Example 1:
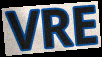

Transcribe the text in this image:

VRE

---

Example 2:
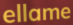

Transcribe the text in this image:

ellame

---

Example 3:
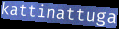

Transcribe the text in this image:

kattinattuga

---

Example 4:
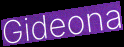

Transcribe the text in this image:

Gideona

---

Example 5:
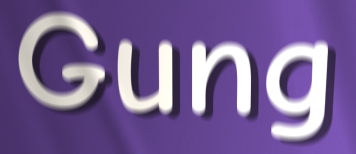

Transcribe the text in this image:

Gung